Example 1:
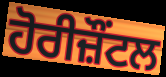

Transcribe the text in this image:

ਹੋਰੀਜ਼ੌਂਟਲ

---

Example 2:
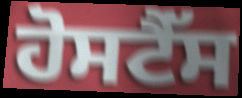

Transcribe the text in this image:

ਹੋਸਟੈੱਸ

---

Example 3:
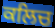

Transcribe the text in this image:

ਕਲਿਚ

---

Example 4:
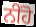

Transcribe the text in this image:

ਨੀਂਹੋ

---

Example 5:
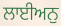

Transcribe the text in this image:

ਲਾਈਅਨੁ